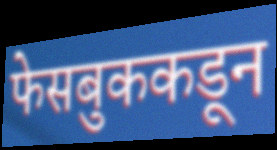
फेसबुककडून